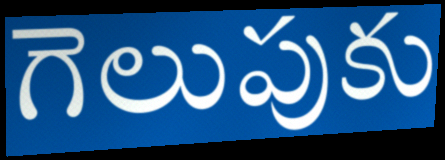
గెలుపుకు